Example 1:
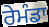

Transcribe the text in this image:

ਰੇਮੰਡਾ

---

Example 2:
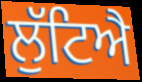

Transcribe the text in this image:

ਲੁੱਟਿਐ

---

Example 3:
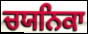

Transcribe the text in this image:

ਚਯਨਿਕਾ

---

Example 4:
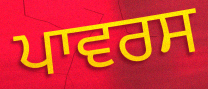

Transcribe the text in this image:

ਪਾਵਰਸ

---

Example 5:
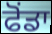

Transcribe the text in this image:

ਫੋਂਡਾ